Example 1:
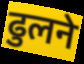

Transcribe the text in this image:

ढुलने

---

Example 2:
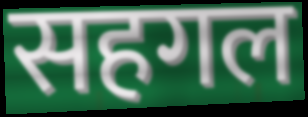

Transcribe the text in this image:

सहगल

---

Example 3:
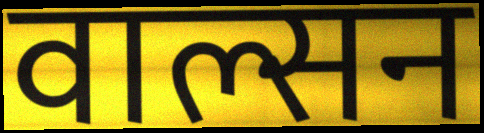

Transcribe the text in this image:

वाल्सन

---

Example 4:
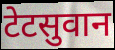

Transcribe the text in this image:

टेटसुवान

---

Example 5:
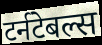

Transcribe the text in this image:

टर्नटेबल्स